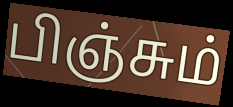
பிஞ்சும்